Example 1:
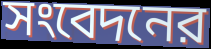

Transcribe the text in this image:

সংবেদনের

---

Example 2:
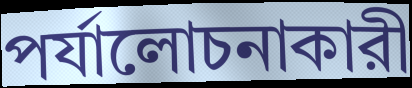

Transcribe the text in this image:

পর্যালোচনাকারী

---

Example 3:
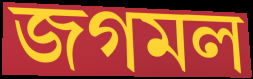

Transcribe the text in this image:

জগমল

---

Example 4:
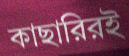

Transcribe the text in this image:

কাছারিরই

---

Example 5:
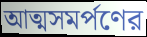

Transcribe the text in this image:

আত্মসমর্পণের